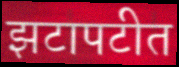
झटापटीत